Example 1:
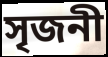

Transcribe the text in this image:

সৃজনী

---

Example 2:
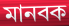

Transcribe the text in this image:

মানবক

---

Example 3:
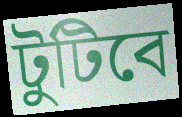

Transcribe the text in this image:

টুটিবে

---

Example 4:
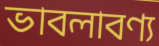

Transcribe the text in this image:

ভাবলাবণ্য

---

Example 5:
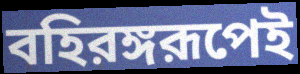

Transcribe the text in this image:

বহিরঙ্গরূপেই